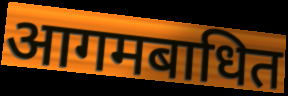
आगमबाधित